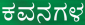
ಕವನಗಳ